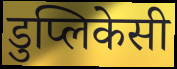
डुप्लिकेसी